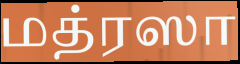
மத்ரஸா